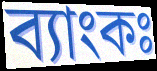
ব্যাংকঃ